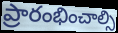
ప్రారంభించాల్సి